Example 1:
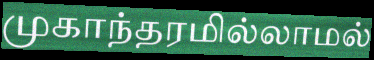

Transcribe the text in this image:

முகாந்தரமில்லாமல்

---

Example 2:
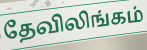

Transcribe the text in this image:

தேவிலிங்கம்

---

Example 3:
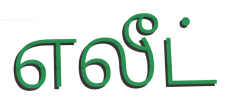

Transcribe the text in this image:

எலீட்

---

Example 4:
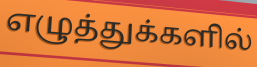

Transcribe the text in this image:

எழுத்துக்களில்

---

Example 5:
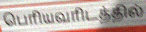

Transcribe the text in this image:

பெரியவரிடத்தில்